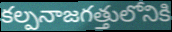
కల్పనాజగత్తులోనికి